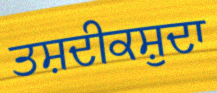
ਤਸ਼ਦੀਕਸ਼ੁਦਾ